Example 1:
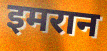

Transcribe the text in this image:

इमरान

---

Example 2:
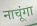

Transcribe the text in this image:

नाचूंगा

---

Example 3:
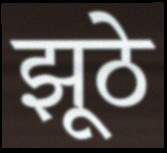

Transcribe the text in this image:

झूठे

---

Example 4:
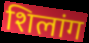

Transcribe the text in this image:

शिलांग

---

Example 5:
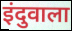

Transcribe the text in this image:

इंदुवाला